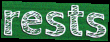
rests